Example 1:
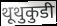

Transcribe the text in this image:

थूथुकुडी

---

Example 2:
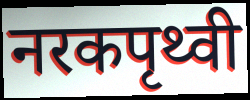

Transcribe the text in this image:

नरकपृथ्वी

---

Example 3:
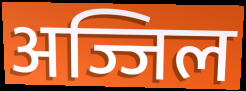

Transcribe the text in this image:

अज्जिल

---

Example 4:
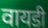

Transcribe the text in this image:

वायडी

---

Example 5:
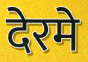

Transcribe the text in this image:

देरमे